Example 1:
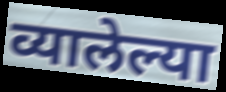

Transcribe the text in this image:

व्यालेल्या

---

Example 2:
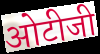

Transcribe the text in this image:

ओटीजी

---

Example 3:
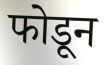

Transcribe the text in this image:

फोडून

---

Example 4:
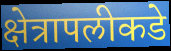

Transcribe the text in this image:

क्षेत्रापलीकडे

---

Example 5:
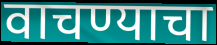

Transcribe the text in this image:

वाचण्याचा